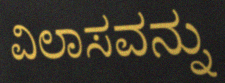
ವಿಲಾಸವನ್ನು